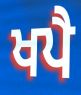
ਖਪੈ